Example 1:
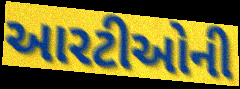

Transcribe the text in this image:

આરટીઓની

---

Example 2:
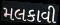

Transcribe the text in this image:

મલકાવી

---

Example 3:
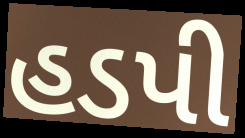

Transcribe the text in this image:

હડપી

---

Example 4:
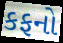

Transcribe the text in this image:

કફનો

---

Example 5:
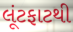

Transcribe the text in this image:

લૂંટફાટથી